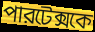
পারটেক্সকে